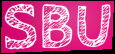
SBU